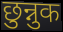
छुन्नुक